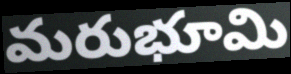
మరుభూమి